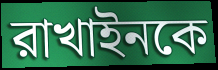
রাখাইনকে